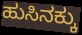
ಹುಸಿನಕ್ಕು